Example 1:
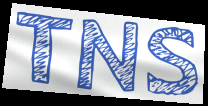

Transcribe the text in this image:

TNS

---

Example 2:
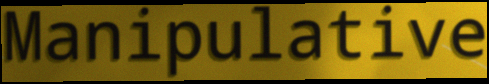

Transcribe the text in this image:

Manipulative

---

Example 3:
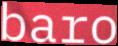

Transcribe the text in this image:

baro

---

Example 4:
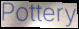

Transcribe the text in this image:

Pottery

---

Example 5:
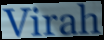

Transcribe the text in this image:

Virah